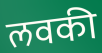
लवकी